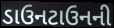
ડાઉનટાઉનની